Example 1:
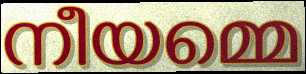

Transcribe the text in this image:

നീയമ്മെ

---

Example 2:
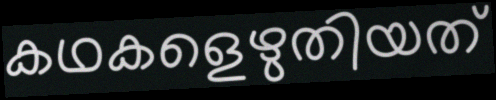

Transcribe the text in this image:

കഥകളെഴുതിയത്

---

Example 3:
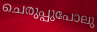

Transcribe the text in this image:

ചെരുപ്പുപോലു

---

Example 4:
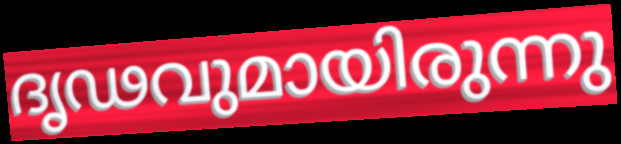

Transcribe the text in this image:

ദൃഢവുമായിരുന്നു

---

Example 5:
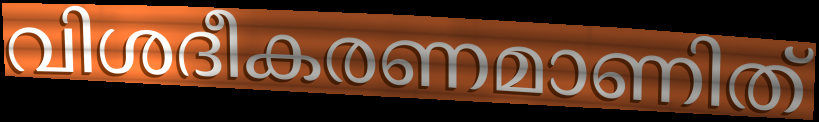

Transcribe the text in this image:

വിശദീകരണമാണിത്